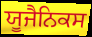
ਯੂਜੈਨਿਕਸ